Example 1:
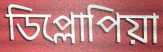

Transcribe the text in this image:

ডিপ্লোপিয়া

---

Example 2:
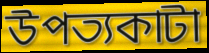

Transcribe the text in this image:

উপত্যকাটা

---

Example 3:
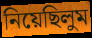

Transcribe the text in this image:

নিয়েছিলুম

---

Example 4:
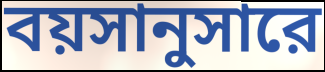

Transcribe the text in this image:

বয়সানুসারে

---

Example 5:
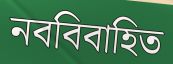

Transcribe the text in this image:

নববিবাহিত